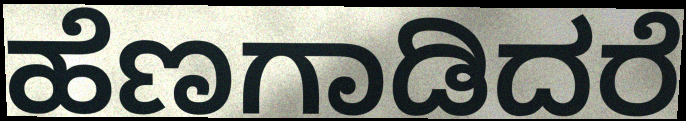
ಹೆಣಗಾಡಿದರೆ